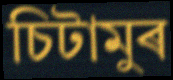
চিটামুৰ